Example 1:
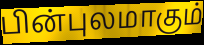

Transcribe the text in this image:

பின்புலமாகும்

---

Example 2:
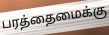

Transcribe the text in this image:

பரத்தைமைக்கு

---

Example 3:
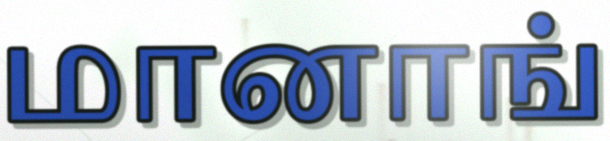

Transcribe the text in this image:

மானாங்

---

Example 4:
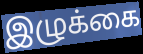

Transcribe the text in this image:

இழுக்கை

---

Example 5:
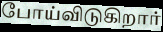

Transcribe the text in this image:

போய்விடுகிறார்